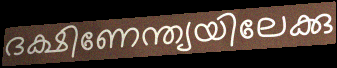
ദക്ഷിണേന്ത്യയിലേക്കു